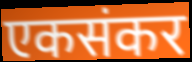
एकसंकर